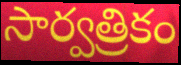
సార్వత్రికం